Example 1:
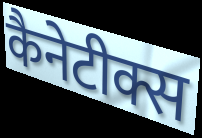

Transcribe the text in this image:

कैनेटीक्स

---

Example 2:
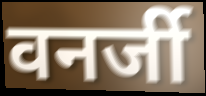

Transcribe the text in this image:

वनर्जी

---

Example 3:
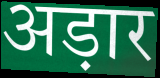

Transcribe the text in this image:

अड़ार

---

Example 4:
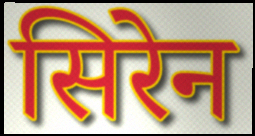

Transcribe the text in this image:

सिरेन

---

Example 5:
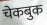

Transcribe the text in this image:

चेकबुक